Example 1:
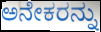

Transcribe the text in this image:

ಅನೇಕರನ್ನು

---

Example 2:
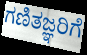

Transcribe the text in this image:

ಗಣಿತಜ್ಞರಿಗೆ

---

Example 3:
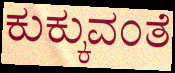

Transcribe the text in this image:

ಕುಕ್ಕುವಂತೆ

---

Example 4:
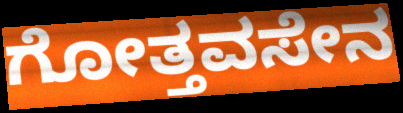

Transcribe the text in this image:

ಗೋತ್ತವಸೇನ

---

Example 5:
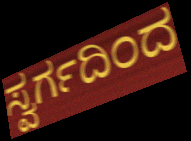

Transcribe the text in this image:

ಸ್ವರ್ಗದಿಂದ